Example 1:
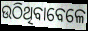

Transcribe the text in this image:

ଉଠିଥିବାବେଳେ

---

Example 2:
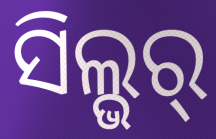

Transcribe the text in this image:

ସିଲ୍ଭର୍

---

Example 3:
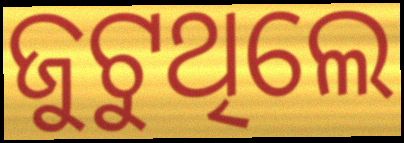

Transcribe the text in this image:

ଜୁଟୁଥିଲେ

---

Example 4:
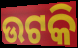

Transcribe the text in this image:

ଉଟକି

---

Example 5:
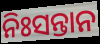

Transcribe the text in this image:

ନିଃସନ୍ତାନ